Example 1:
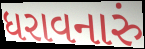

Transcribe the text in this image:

ધરાવનારું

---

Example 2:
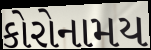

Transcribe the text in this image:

કોરોનામય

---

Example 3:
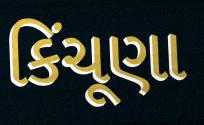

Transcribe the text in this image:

કિંચૂણા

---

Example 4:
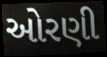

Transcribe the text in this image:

ઓરણી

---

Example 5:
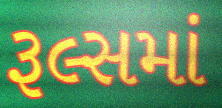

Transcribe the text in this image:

રૂલ્સમાં